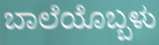
ಬಾಲೆಯೊಬ್ಬಳು